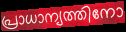
പ്രാധാന്യത്തിനോ